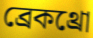
ব্রেকথ্রো